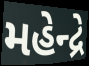
મહેન્દ્રે